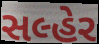
સલ્હેર